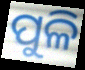
ପୁଳି